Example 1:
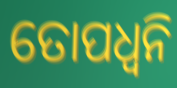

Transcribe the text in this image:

ତୋପଧ୍ୱନି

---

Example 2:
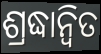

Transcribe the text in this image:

ଶ୍ରଦ୍ଧାନ୍ୱିତ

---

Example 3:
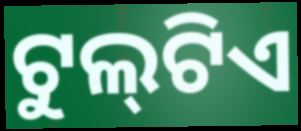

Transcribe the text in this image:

ଟୁଲ୍‍ଟିଏ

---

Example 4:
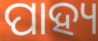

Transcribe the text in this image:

ପାହ୍ୟ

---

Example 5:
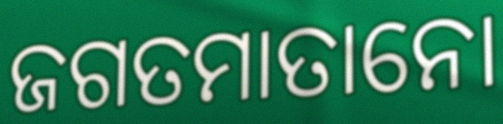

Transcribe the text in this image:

ଜଗତମାତାନୋ